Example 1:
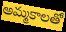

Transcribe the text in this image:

అమ్మకాలతో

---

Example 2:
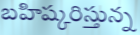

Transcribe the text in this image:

బహిష్కరిస్తున్న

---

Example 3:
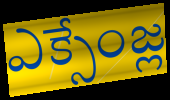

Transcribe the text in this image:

ఎక్సేంజ్ల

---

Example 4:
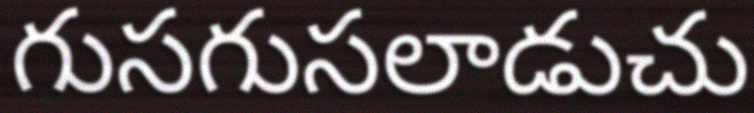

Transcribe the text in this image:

గుసగుసలాడుచు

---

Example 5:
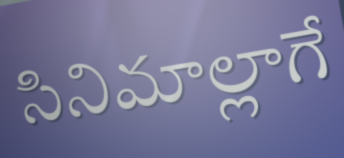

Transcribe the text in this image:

సినిమాల్లాగే